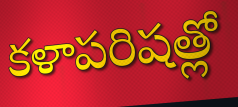
కళాపరిషత్లో